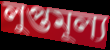
লুপ্তমূল্য